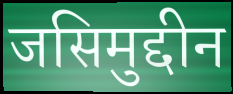
जसिमुद्दीन